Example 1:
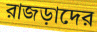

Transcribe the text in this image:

রাজড়াদের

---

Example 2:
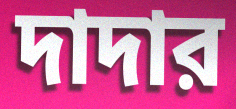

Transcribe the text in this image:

দাদার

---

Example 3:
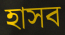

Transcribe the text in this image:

হাসব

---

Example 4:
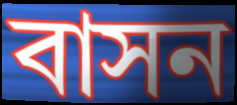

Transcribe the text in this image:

বাসন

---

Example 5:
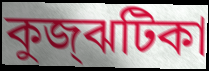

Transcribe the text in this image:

কুজ্‌ঝটিকা